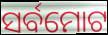
ସର୍ବମୋଟ